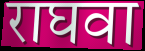
राघवा